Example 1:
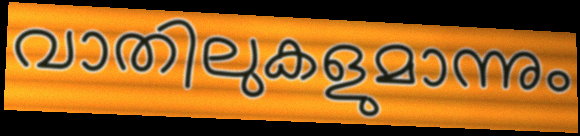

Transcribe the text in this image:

വാതിലുകളുമാന്നും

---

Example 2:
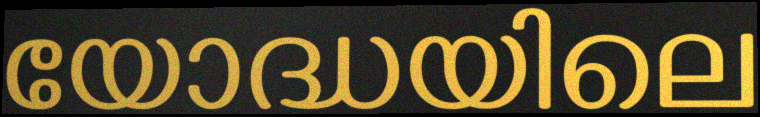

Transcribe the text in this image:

യോദ്ധയിലെ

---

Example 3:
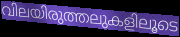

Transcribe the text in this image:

വിലയിരുത്തലുകളിലൂടെ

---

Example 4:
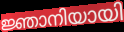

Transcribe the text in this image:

ജ്ഞാനിയായി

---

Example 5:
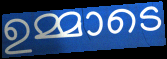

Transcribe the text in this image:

ഉമ്മാടെ